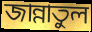
জান্নাতুল